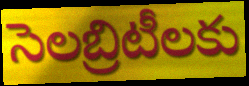
సెలబ్రిటీలకు